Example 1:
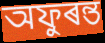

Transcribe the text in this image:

অফুৰন্ত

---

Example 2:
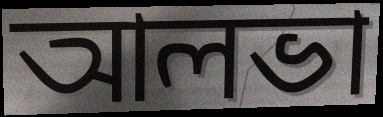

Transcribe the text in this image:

আলভা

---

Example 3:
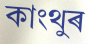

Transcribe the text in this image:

কাংথুৰ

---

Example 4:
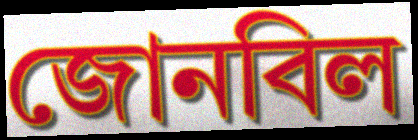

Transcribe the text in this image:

জোনবিল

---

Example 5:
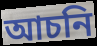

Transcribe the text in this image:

আচনি